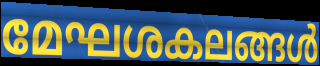
മേഘശകലങ്ങൾ